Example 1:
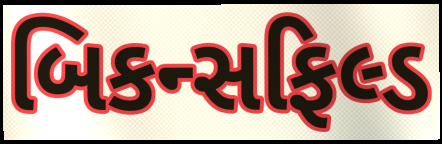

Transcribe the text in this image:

બિકન્સફિલ્ડ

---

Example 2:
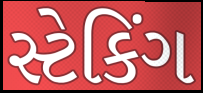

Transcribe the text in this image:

સ્ટેકિંગ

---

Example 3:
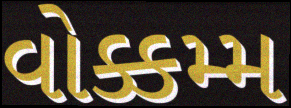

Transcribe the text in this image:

વોક્કમ્મ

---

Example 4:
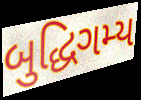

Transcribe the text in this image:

બુદ્ધિગમ્ય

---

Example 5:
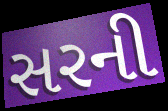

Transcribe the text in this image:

સરની